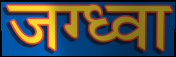
जग्ध्वा